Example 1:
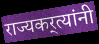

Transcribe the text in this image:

राज्यकर्त्यांनी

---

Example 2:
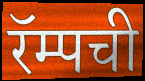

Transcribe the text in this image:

रॅम्पची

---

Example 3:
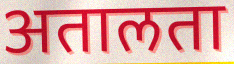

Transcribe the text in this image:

अतालता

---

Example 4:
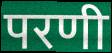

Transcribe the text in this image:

परणी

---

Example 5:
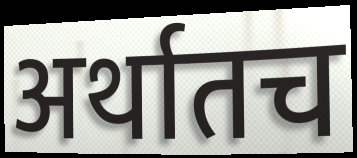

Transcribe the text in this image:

अर्थातच